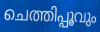
ചെത്തിപ്പൂവും